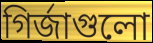
গির্জাগুলো